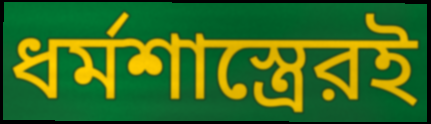
ধর্মশাস্ত্রেরই